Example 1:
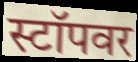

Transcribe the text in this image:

स्टॉपवर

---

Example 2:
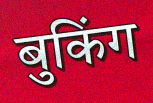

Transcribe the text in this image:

बुकिंग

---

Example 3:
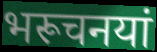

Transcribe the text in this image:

भरूचनयां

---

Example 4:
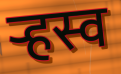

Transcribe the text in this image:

र्‍हस्व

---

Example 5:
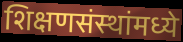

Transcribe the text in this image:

शिक्षणसंस्थांमध्ये